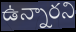
ఉన్నారని